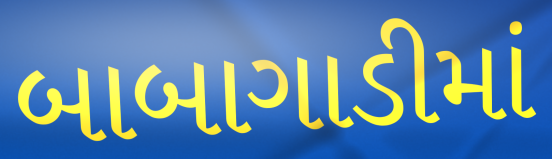
બાબાગાડીમાં